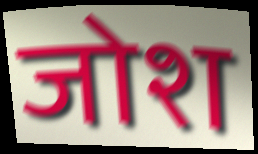
जोश